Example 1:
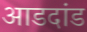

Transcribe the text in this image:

आडदांड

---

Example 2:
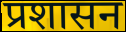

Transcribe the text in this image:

प्रशासन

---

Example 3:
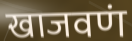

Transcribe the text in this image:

खाजवणं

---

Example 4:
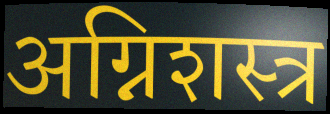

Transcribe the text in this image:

अग्निशस्त्र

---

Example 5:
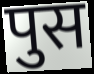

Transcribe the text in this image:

पुस